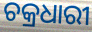
ଚକ୍ରଧାରୀ